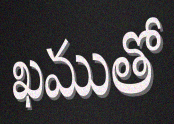
ఖముతో